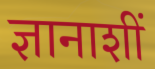
ज्ञानाशीं